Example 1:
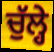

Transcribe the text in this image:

ਚੁੱਲ੍ਹੇ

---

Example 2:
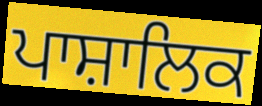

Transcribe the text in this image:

ਪਾਸ਼ਾਲਿਕ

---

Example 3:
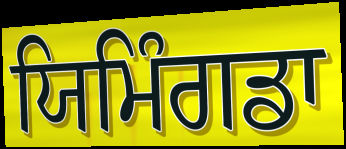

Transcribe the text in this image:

ਯਿਮਿੰਗਡਾ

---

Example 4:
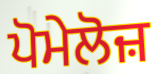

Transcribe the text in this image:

ਪੋਮੇਲੋਜ਼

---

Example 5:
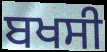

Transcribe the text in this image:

ਬਖਸੀ